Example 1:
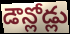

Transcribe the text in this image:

డౌన్లోడ్లు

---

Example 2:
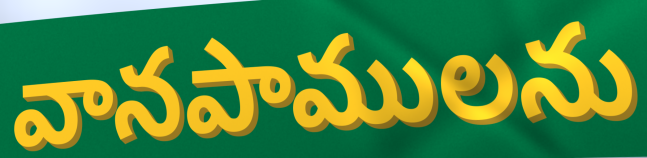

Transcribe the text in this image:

వానపాములను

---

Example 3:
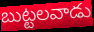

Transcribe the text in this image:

బుట్టలవాడు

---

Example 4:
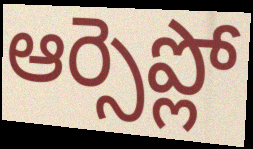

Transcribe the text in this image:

ఆర్సెప్లో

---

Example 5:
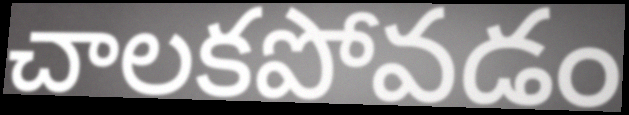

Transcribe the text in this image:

చాలకపోవడం